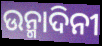
ଉନ୍ମାଦିନୀ